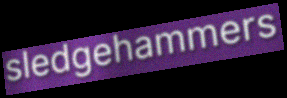
sledgehammers